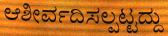
ಆಶೀರ್ವದಿಸಲ್ಪಟ್ಟದ್ದು